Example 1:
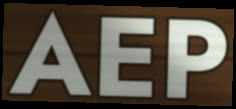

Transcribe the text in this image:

AEP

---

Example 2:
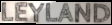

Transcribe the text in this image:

LEYLAND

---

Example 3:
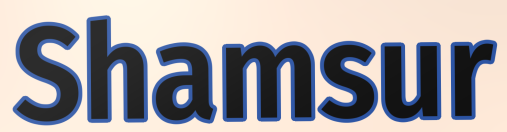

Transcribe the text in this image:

Shamsur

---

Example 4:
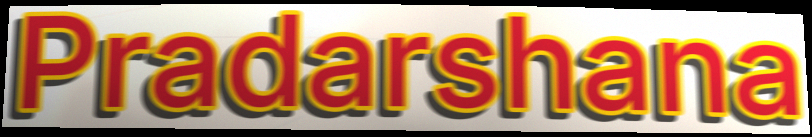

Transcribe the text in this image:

Pradarshana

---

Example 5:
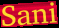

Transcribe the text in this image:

Sani